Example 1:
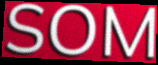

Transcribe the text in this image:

SOM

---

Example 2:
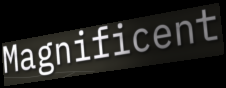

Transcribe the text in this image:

Magnificent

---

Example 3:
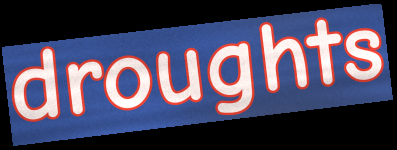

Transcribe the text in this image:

droughts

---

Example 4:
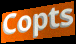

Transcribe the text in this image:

Copts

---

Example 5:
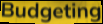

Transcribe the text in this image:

Budgeting